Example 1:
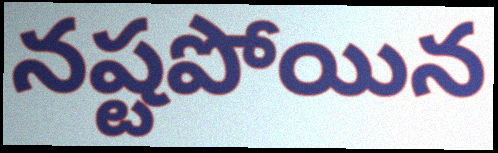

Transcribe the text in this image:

నష్టపోయిన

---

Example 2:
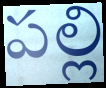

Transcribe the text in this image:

పల్లి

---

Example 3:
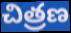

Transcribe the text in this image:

చిత్రణ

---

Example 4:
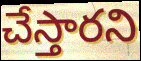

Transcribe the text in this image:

చేస్తారని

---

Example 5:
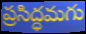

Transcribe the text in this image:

ప్రసిద్ధమగు